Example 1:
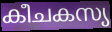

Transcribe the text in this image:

കീചകസ്യ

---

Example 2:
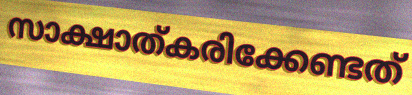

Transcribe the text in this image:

സാക്ഷാത്കരിക്കേണ്ടത്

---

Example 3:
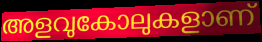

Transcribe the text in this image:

അളവുകോലുകളാണ്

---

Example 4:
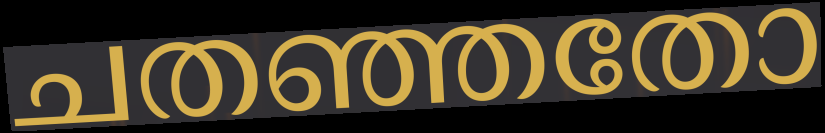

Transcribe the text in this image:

ചതഞ്ഞതോ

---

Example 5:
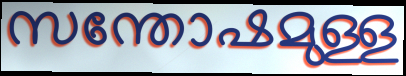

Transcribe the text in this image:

സന്തോഷമുള്ള